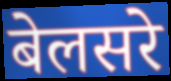
बेलसरे